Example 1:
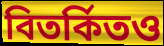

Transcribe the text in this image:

বিতর্কিতও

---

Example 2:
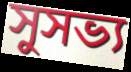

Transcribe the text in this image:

সুসভ্য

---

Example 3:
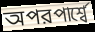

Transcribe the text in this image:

অপরপার্শ্বে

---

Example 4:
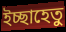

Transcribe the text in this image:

ইচ্ছাহেতু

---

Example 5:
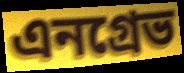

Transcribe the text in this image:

এনগ্রেভ